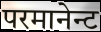
परमानेन्ट